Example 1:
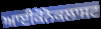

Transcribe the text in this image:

ਆਈਕੋਨੋਕਲਾਸਟ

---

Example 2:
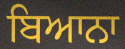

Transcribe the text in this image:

ਬਿਆਨਾ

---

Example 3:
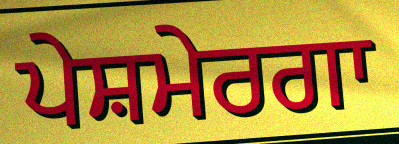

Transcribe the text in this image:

ਪੇਸ਼ਮੇਰਗਾ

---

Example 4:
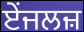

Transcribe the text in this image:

ਏਂਜਲਜ਼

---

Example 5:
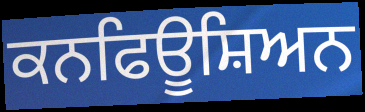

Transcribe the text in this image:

ਕਨਫਿਊਸ਼ਿਅਨ